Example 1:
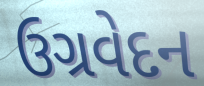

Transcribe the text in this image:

ઉગ્રવેદન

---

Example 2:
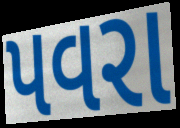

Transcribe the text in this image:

પવરા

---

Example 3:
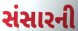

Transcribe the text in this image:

સંસારની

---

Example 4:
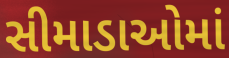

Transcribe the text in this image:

સીમાડાઓમાં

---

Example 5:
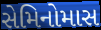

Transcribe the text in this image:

સેમિનોમાસ